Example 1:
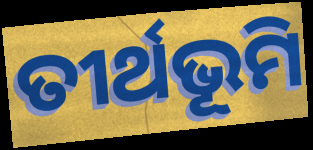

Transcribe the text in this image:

ତୀର୍ଥଭୂମି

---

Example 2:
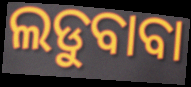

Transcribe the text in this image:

ଲଡୁବାବା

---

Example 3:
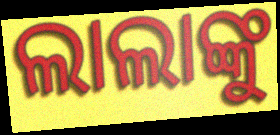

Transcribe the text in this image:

ଲାଲାଙ୍କୁ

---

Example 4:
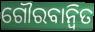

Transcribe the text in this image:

ଗୌରବାନ୍ୱିତ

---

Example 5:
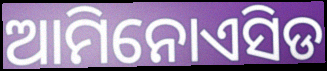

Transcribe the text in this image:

ଆମିନୋଏସିଡ